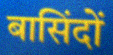
बासिंदों